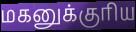
மகனுக்குரிய